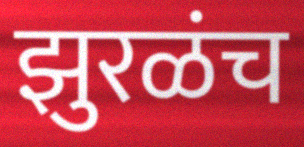
झुरळंच